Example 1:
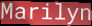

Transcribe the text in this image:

Marilyn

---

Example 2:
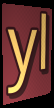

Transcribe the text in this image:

yl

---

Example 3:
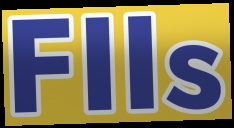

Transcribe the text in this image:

FIIs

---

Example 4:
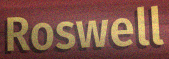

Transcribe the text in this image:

Roswell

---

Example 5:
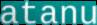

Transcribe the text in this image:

atanu